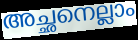
അച്ഛനെല്ലാം